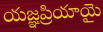
యజ్ఞప్రియాయై